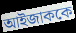
আইজাককে